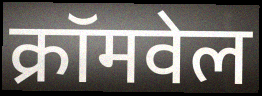
क्रॉमवेल